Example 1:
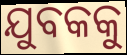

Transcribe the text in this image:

ଯୁବକକୁ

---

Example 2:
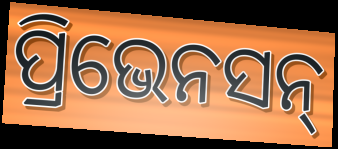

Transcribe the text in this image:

ପ୍ରିଭେନସନ୍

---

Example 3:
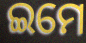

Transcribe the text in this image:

ଇମେ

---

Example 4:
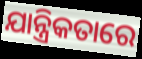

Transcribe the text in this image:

ଯାନ୍ତ୍ରିକତାରେ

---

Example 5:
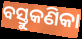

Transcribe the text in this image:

ବସ୍ତୁକଣିକା